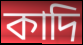
কাদি